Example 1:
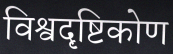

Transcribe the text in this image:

विश्वदृष्टिकोण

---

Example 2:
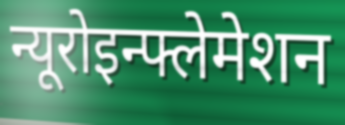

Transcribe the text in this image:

न्यूरोइन्फ्लेमेशन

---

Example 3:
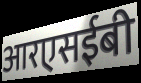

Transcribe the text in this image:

आरएसईबी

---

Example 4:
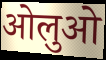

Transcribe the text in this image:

ओलुओ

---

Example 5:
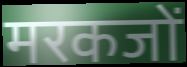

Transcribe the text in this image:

मरकजों